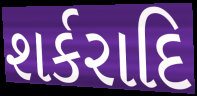
શર્કરાદિ